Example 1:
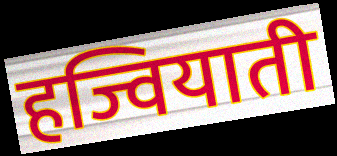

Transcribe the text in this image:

हज्वियाती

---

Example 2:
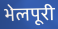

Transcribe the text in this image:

भेलपूरी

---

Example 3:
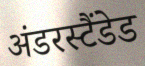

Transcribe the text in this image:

अंडरस्टैंडेड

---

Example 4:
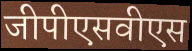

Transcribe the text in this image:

जीपीएसवीएस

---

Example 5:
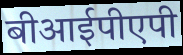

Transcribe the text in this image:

बीआईपीएपी